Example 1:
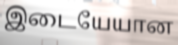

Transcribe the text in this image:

இடையேயான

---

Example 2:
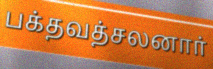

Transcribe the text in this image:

பக்தவத்சலனார்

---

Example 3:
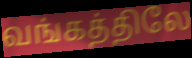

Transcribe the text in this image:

வங்கத்திலே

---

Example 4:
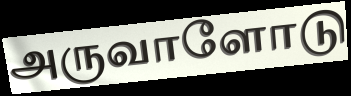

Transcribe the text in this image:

அருவாளோடு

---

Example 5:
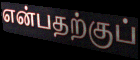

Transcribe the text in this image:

என்பதற்குப்